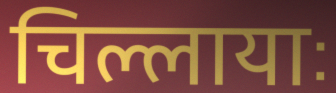
चिल्लायाः